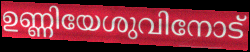
ഉണ്ണിയേശുവിനോട്